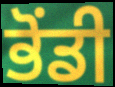
ਭੋਂਡੀ